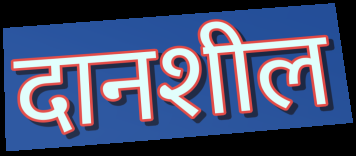
दानशील